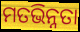
ମତଭିନ୍ନତା